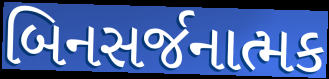
બિનસર્જનાત્મક